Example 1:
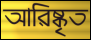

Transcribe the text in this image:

আৱিষ্কৃত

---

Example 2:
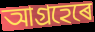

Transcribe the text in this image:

আগ্ৰহেৰে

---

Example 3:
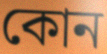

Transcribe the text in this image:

কোন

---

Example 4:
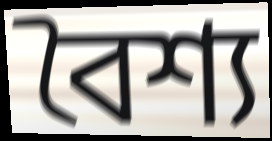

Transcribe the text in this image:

বৈশ্য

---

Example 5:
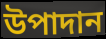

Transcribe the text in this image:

উপাদান